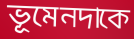
ভূমেনদাকে